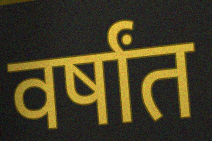
वर्षांत